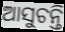
ଆସୁଚନ୍ତି